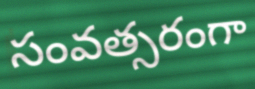
సంవత్సరంగా